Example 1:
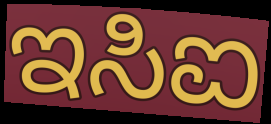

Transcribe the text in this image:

ಇಸಿಐ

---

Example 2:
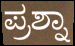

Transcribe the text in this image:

ಪ್ರಶ್ನಾ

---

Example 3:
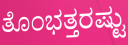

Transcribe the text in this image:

ತೊಂಭತ್ತರಷ್ಟು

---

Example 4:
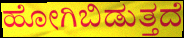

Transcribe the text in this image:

ಹೋಗಿಬಿಡುತ್ತದೆ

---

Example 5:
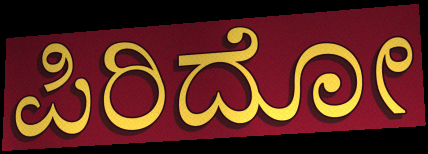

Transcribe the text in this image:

ಪಿರಿದೋ